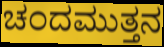
ಚಂದಮುತ್ತನ